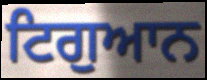
ਟਿਗੁਆਨ